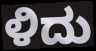
ಳಿದು